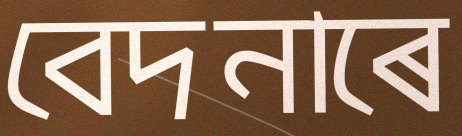
বেদনাৰে